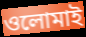
ওলোমাই